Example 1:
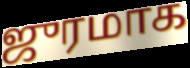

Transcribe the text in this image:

ஜுரமாக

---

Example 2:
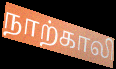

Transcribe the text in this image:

நாற்காலி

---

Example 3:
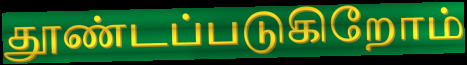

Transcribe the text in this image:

தூண்டப்படுகிறோம்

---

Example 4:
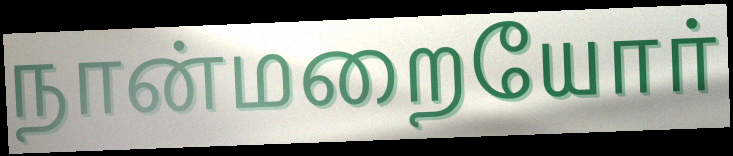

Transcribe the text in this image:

நான்மறையோர்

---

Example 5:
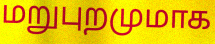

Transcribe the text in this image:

மறுபுறமுமாக